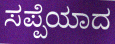
ಸಪ್ಪೆಯಾದ